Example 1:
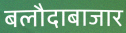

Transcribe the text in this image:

बलौदाबाजार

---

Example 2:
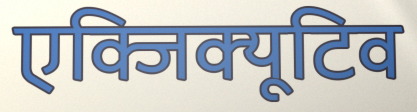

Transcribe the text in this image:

एक्जिक्यूटिव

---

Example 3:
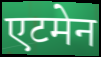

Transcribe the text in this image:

एटमेन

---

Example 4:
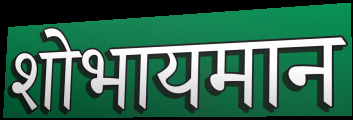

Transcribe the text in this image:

शोभायमान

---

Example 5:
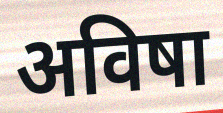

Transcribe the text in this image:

अविषा